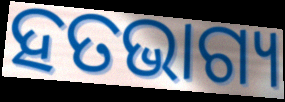
ହତଭାଗ୍ୟ